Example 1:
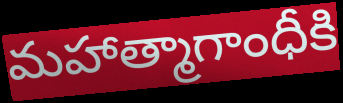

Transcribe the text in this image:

మహాత్మాగాంధీకి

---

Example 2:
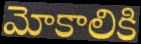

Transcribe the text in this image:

మోకాలికి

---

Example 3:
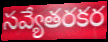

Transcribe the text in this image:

సవ్యేతరకర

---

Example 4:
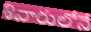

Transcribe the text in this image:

శివారులోనే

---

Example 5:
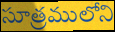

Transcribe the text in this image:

సూత్రములోని